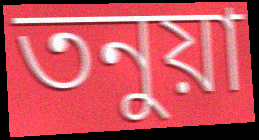
তনুয়া